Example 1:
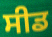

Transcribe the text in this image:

ਸੀਡ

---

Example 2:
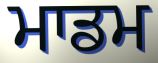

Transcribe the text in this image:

ਮਾਡਮ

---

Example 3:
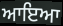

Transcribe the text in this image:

ਆਇਆ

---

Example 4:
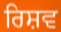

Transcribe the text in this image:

ਰਿਸ਼ਵ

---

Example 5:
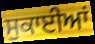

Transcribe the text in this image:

ਸੁਕਾਈਆਂ